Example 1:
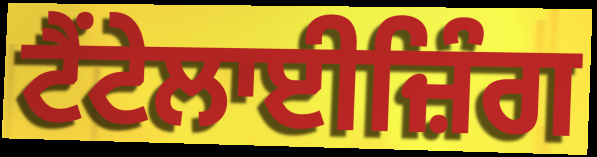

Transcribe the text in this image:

ਟੈਂਟੇਲਾਈਜ਼ਿੰਗ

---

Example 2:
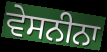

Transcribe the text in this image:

ਵੇਸਨੀਨਾ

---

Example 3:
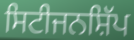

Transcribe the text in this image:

ਸਿਟੀਜਨਸ਼ਿੱਪ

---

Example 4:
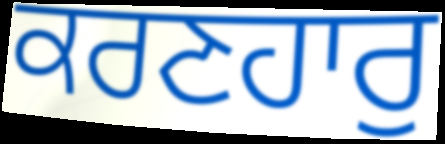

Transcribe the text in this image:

ਕਰਣਹਾਰੁ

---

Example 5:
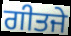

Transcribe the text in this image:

ਗੀਤਜੇ